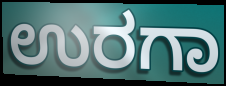
ಉರಗಾ